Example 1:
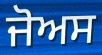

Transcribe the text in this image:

ਜੋਅਸ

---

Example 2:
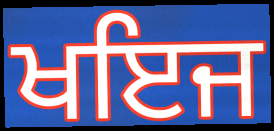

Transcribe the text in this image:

ਖਇਜ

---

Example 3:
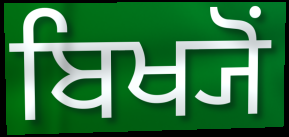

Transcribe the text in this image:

ਬਿਖ੍ਯੋਂ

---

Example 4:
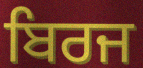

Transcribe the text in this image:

ਬਿਰਜ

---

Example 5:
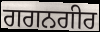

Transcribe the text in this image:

ਗਗਨਗੀਰ